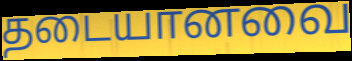
தடையானவை